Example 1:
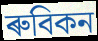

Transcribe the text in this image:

ৰুবিকন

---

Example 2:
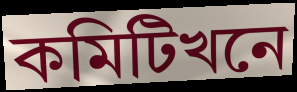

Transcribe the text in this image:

কমিটিখনে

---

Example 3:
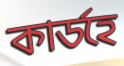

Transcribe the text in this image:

কাৰ্ডহে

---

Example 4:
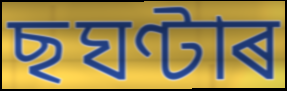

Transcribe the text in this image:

ছঘণ্টাৰ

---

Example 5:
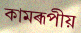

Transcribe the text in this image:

কামৰূপীয়